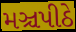
મઞ્ચપીઠે